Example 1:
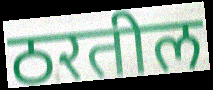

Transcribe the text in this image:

ठरतील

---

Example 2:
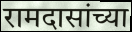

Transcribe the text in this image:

रामदासांच्या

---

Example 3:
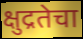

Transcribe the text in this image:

क्षुद्रतेचा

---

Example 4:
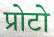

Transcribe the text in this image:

प्रोटो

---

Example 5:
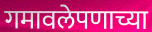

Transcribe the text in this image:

गमावलेपणाच्या